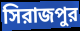
সিরাজপুর